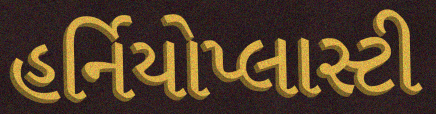
હર્નિયોપ્લાસ્ટી